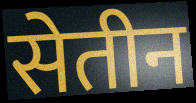
सेतीन